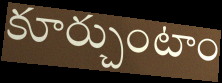
కూర్చుంటాం